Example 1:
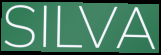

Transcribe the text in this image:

SILVA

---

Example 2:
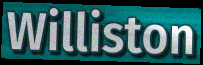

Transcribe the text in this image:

Williston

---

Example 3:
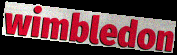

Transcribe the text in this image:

wimbledon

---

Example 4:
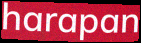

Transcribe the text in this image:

harapan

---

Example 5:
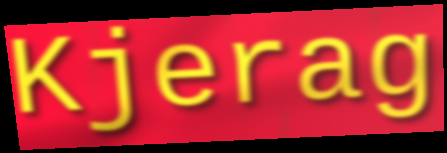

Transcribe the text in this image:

Kjerag